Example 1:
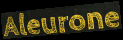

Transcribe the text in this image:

Aleurone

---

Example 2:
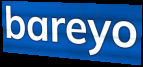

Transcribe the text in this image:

bareyo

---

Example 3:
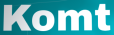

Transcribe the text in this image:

Komt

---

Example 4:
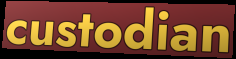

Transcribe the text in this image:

custodian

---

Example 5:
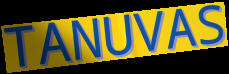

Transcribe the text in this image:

TANUVAS